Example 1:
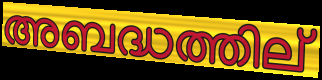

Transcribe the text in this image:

അബദ്ധത്തില്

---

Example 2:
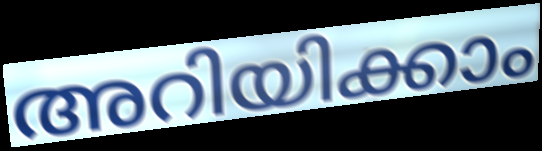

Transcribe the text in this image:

അറിയിക്കാം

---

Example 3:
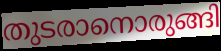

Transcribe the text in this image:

തുടരാനൊരുങ്ങി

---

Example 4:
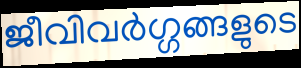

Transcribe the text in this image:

ജീവിവർഗ്ഗങ്ങളുടെ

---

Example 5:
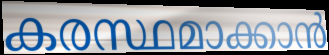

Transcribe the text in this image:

കരസ്ഥമാക്കാൻ